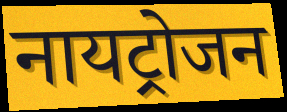
नायट्रोजन